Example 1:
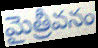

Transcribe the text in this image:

మైత్రీవనం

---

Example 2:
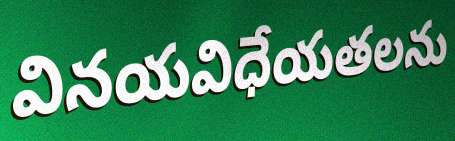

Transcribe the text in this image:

వినయవిధేయతలను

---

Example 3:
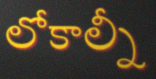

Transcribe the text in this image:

లోకాల్నీ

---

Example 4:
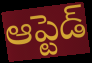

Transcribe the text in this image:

ఆప్టెడ్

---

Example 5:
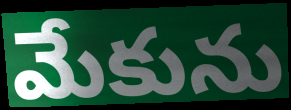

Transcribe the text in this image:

మేకును